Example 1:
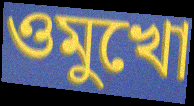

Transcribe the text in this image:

ওমুখো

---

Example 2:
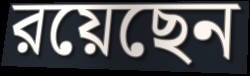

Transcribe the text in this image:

রয়েছেন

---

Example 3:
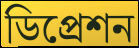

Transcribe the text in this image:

ডিপ্রেশন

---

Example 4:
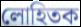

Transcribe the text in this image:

লোহিতক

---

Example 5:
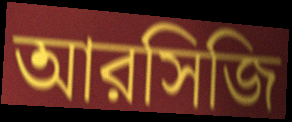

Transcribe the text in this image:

আরসিজি